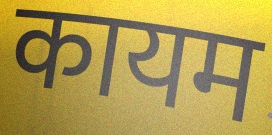
कायम